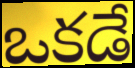
ఒకడే